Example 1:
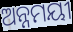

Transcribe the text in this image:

ଅନ୍ନମୟୀ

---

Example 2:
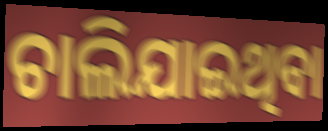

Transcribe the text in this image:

ଚାଲିଯାଇଥିବା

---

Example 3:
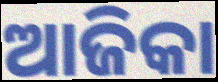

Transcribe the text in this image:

ଆଜିକା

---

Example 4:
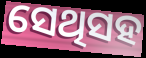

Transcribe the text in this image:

ସେଥିସହ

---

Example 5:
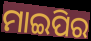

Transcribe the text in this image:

ମାଇପିର